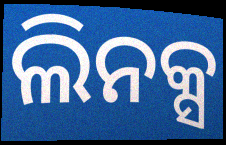
ଲିନକ୍ସ